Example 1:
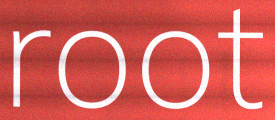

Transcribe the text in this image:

root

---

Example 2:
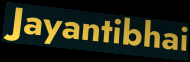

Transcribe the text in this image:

Jayantibhai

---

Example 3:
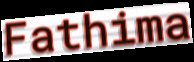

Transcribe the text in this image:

Fathima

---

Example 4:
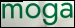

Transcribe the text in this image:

moga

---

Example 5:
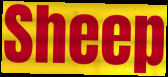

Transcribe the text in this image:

Sheep